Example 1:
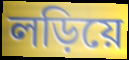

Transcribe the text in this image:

লড়িয়ে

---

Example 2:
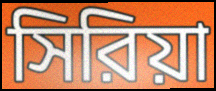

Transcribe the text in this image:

সিরিয়া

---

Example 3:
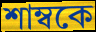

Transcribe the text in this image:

শাম্বকে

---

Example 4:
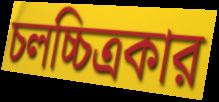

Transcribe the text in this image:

চলচ্চিত্রকার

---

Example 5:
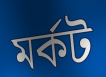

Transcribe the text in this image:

মর্কট